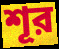
শূর